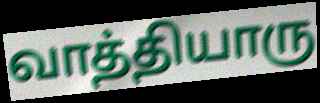
வாத்தியாரு